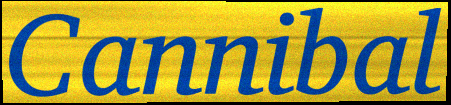
Cannibal